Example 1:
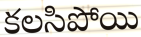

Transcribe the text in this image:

కలసిపోయి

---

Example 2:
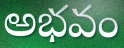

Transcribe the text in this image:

అభవం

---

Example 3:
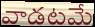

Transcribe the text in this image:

వాడటమే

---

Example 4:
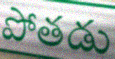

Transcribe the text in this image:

పోతడు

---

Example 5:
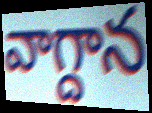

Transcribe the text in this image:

వాగ్దాన